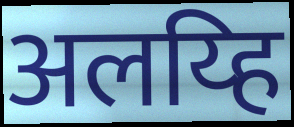
अलय्हि